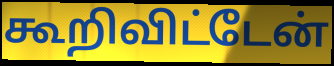
கூறிவிட்டேன்